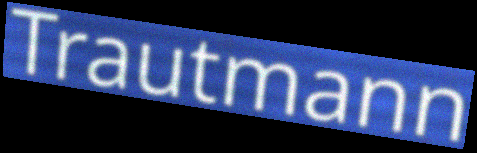
Trautmann